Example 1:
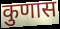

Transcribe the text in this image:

कुणास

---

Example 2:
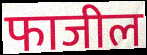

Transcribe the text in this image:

फाजील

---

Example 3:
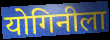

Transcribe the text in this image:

योगिनीला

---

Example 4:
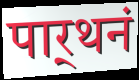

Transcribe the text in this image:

पार्थनं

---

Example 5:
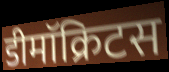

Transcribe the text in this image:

डीमॉक्रिटस